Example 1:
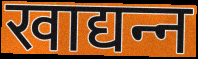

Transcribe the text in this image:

खाद्यन्न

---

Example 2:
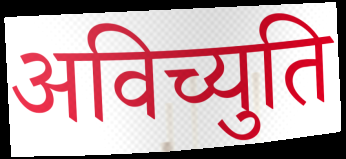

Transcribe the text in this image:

अविच्युति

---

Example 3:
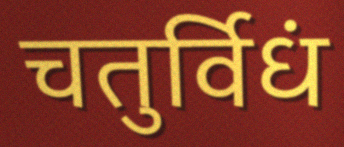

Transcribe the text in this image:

चतुर्विधं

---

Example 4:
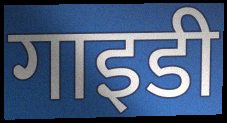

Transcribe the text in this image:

गाइडी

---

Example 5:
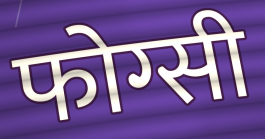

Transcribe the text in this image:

फोग्सी